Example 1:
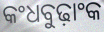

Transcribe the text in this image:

କଂଧବୁଢ଼ାଂକ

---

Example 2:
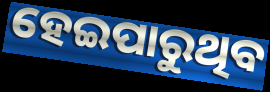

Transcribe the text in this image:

ହେଇପାରୁଥିବ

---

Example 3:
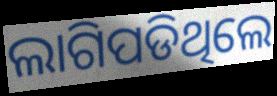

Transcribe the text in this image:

ଲାଗିପଡିଥିଲେ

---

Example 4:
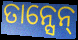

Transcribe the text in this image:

ତାନ୍ସେନ୍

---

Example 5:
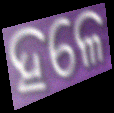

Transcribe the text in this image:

ହଳେ